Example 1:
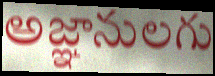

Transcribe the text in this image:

అజ్ఞానులగు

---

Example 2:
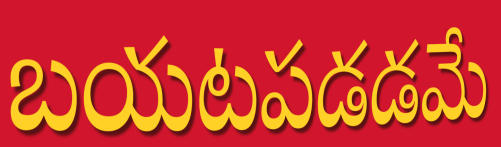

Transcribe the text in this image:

బయటపడడమే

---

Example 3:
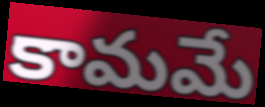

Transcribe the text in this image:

కామమే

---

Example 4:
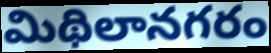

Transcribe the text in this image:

మిథిలానగరం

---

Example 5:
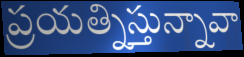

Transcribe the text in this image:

ప్రయత్నిస్తున్నావా